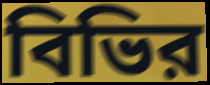
বিভির